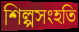
শিল্পসংহতি